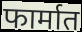
फार्मात